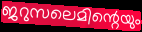
ജറുസലെമിന്റെയും